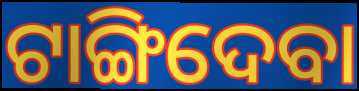
ଟାଙ୍ଗିଦେବା